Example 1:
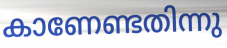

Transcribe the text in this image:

കാണേണ്ടതിന്നു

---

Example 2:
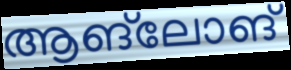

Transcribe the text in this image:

ആങ്‌ലോങ്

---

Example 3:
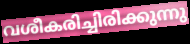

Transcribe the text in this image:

വശീകരിച്ചിരിക്കുന്നു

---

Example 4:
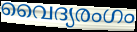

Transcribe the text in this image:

വൈദ്യരംഗം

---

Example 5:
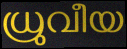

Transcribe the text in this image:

ധ്രുവീയ